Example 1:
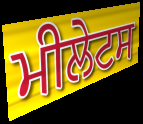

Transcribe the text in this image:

ਮੀਲੇਟਸ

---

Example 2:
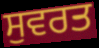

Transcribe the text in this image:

ਸੁਵਰਤ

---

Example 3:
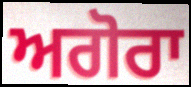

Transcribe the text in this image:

ਅਗੋਰਾ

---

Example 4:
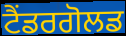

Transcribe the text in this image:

ਟੈਂਡਰਗੋਲਡ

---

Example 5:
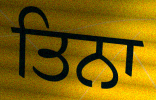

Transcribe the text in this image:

ਤਿਨਾ